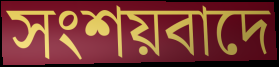
সংশয়বাদে